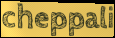
cheppali